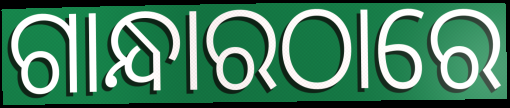
ଗାନ୍ଧାରଠାରେ